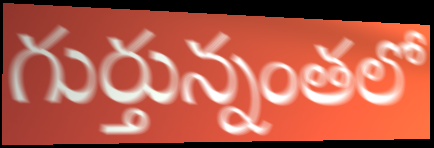
గుర్తున్నంతలో